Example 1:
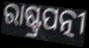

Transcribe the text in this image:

ରାଷ୍ଟ୍ରପତ୍ନୀ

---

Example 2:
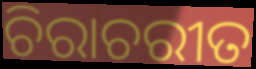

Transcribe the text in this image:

ଚିରାଚରୀତ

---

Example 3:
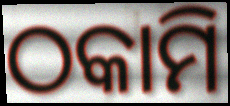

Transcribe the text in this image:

ଠକାମି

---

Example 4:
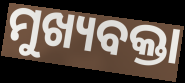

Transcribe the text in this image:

ମୁଖ୍ୟବକ୍ତା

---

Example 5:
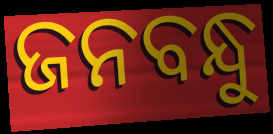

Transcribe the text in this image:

ଜନବନ୍ଧୁ